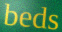
beds